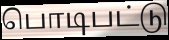
பொடிபட்டு